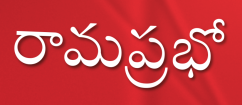
రామప్రభో